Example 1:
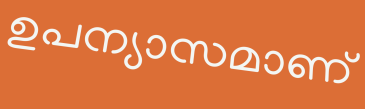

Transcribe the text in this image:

ഉപന്യാസമാണ്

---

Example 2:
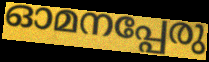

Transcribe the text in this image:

ഓമനപ്പേരു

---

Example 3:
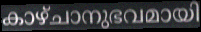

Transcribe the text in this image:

കാഴ്ചാനുഭവമായി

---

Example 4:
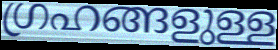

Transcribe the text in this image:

ഗ്രഹങ്ങളുള്ള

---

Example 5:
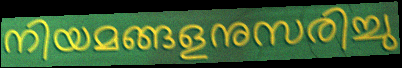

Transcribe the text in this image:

നിയമങ്ങളനുസരിച്ചു